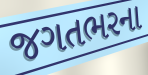
જગતભરના